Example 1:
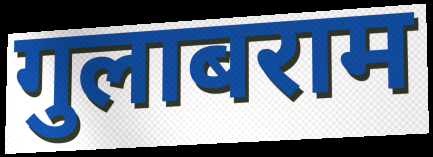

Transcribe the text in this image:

गुलाबराम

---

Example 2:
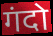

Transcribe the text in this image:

गंदो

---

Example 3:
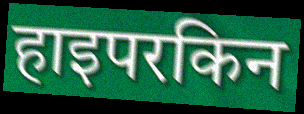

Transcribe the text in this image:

हाइपरकिन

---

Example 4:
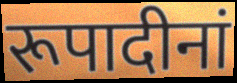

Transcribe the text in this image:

रूपादीनां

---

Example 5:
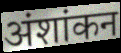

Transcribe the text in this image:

अंशांकन